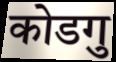
कोडगु